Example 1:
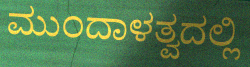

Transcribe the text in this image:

ಮುಂದಾಳತ್ವದಲ್ಲಿ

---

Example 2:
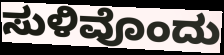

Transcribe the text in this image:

ಸುಳಿವೊಂದು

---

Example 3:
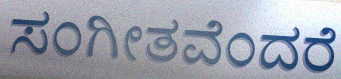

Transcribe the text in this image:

ಸಂಗೀತವೆಂದರೆ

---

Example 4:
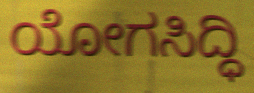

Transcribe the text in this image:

ಯೋಗಸಿದ್ಧಿ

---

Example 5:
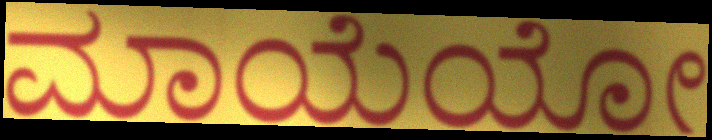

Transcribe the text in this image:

ಮಾಯೆಯೋ